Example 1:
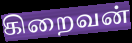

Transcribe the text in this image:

கிறைவன்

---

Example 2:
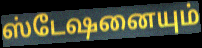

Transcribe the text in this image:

ஸ்டேஷனையும்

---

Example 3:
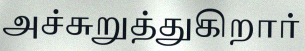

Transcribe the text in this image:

அச்சுறுத்துகிறார்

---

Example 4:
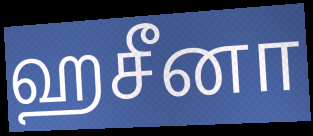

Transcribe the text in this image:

ஹசீனா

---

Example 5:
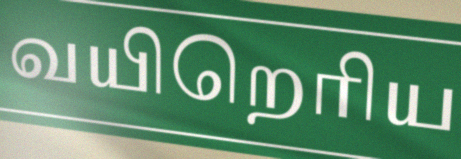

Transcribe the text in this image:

வயிறெரிய